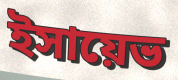
ইসায়েভ